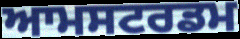
ਆਮਸਟਰਡਮ